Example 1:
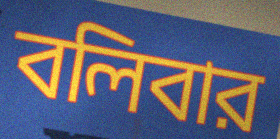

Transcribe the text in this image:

বলিবার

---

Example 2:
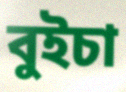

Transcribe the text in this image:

বুইচা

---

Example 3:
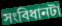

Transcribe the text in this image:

সংবিধানটা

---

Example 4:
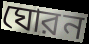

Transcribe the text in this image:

ঘোরন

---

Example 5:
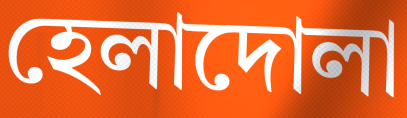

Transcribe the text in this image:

হেলাদোলা